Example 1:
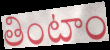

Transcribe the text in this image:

తింటాం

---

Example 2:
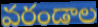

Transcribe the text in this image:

వరండాల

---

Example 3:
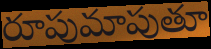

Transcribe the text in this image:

రూపుమాపుతూ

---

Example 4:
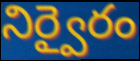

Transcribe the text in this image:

నిర్వైరం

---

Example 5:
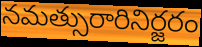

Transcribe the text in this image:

నమత్సురారినిర్జరం